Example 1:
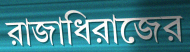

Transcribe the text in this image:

রাজাধিরাজের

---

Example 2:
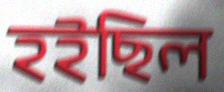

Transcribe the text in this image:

হইছিল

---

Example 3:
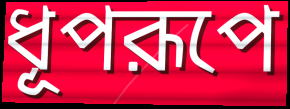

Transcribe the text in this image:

ধূপরূপে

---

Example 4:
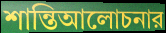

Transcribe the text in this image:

শান্তিআলোচনার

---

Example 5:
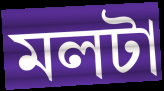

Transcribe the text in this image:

মলটা